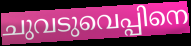
ചുവടുവെപ്പിനെ